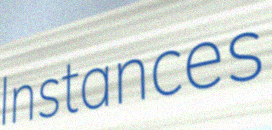
Instances